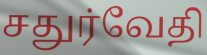
சதுர்வேதி